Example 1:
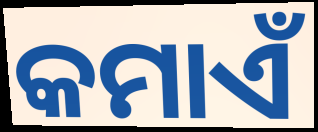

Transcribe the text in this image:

କମାଏଁ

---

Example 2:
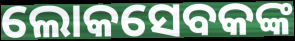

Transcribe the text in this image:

ଲୋକସେବକଙ୍କ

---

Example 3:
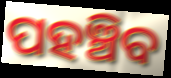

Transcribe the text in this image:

ପହଞ୍ଚିବ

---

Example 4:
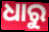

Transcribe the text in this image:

ଧାରୁ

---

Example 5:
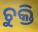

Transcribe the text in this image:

ଚୁକ୍ତି